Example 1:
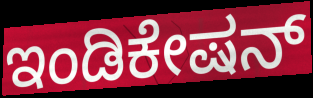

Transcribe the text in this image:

ಇಂಡಿಕೇಷನ್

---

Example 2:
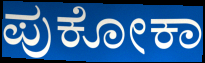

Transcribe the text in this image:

ಪುಕೋಕಾ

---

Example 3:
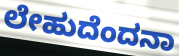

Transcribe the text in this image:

ಲೇಹುದೆಂದನಾ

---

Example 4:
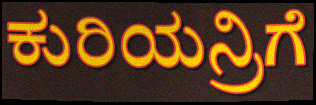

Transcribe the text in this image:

ಕುರಿಯನ್ರಿಗೆ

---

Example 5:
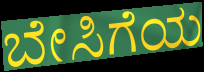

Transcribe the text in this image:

ಬೇಸಿಗೆಯ